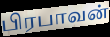
பிரபாவன்